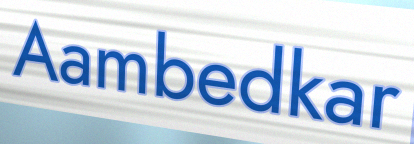
Aambedkar